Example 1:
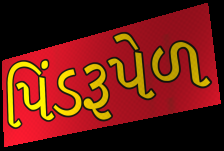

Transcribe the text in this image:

પિંડરૂપેળ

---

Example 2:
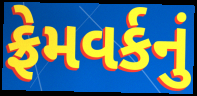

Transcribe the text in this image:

ફ્રેમવર્કનું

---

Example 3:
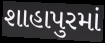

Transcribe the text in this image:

શાહાપુરમાં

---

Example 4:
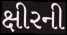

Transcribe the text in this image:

ક્ષીરની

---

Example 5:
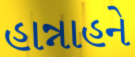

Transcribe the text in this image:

હાન્નાહને